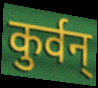
कुर्वन्